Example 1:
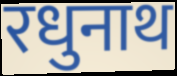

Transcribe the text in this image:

रधुनाथ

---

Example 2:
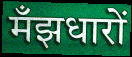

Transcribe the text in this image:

मँझधारों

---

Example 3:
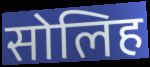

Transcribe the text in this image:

सोलिह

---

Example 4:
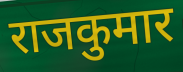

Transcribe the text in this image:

राजकुमार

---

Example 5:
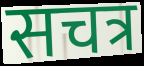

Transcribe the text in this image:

सचत्र